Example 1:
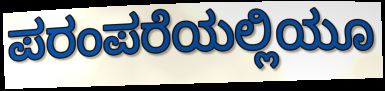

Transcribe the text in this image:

ಪರಂಪರೆಯಲ್ಲಿಯೂ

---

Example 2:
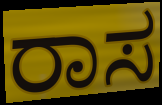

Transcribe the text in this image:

ರಾಸ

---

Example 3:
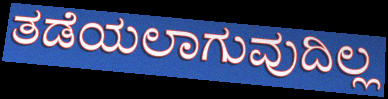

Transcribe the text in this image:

ತಡೆಯಲಾಗುವುದಿಲ್ಲ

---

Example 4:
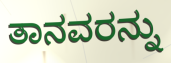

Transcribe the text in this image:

ತಾನವರನ್ನು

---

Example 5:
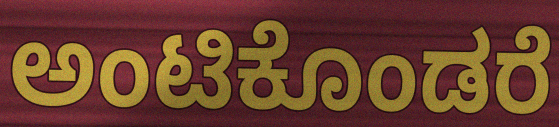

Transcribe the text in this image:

ಅಂಟಿಕೊಂಡರೆ